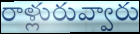
రాళ్లురువ్వారు